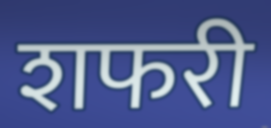
शफरी